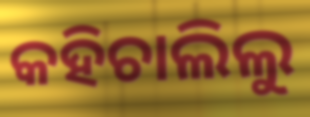
କହିଚାଲିଲୁ